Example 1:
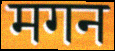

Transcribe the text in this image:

मगन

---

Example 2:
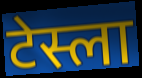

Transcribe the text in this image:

टेस्ला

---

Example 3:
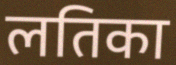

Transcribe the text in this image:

लतिका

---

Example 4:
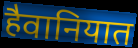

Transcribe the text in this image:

हैवानियात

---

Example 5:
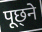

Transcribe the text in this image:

पूछ्ने